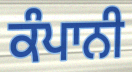
ਕੰਪਾਨੀ